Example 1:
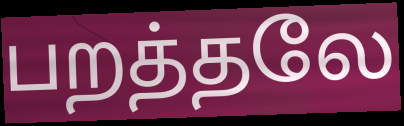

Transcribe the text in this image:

பறத்தலே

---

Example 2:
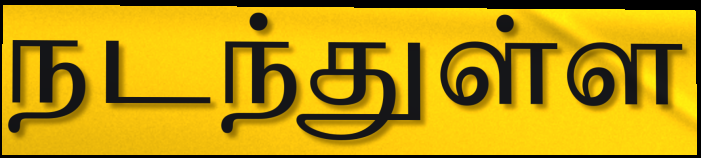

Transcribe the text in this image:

நடந்துள்ள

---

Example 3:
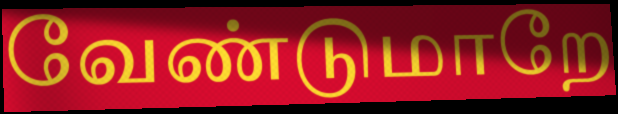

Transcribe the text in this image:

வேண்டுமாறே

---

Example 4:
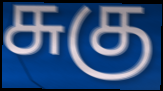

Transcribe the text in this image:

சுகு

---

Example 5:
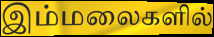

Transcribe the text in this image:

இம்மலைகளில்